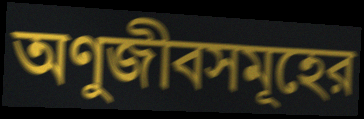
অণুজীবসমূহের